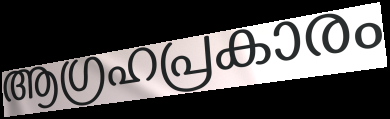
ആഗ്രഹപ്രകാരം